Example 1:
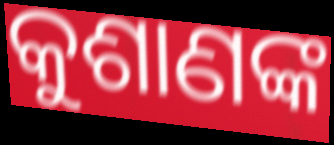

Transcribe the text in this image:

କୁଶାଣଙ୍କ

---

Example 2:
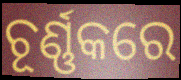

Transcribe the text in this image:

ଚୂର୍ଣ୍ଣକରେ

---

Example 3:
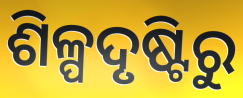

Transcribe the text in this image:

ଶିଳ୍ପଦୃଷ୍ଟିରୁ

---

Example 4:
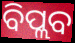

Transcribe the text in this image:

ବିପ୍ଲବ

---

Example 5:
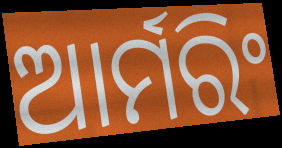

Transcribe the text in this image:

ଆର୍ମରିଂ